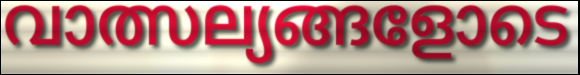
വാത്സല്യങ്ങളോടെ